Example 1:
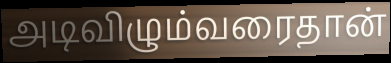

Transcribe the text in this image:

அடிவிழும்வரைதான்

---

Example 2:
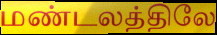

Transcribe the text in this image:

மண்டலத்திலே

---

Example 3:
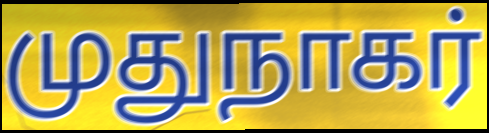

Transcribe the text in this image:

முதுநாகர்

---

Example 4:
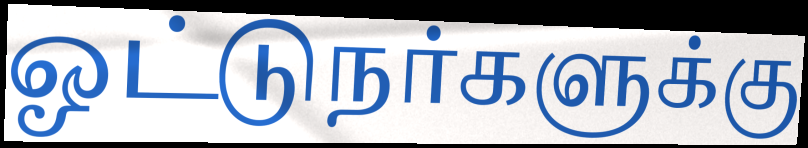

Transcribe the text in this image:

ஓட்டுநர்களுக்கு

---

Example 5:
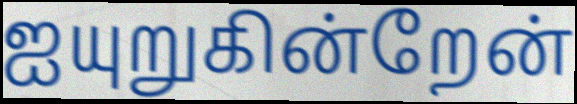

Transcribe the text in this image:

ஐயுறுகின்றேன்